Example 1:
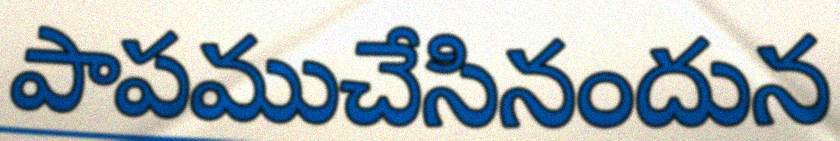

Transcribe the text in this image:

పాపముచేసినందున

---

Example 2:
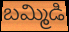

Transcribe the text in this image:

బమ్మిడి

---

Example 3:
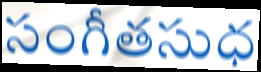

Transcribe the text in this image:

సంగీతసుధ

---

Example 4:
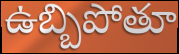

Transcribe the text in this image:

ఉబ్బిపోతూ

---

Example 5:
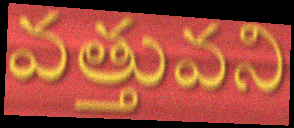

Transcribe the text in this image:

వత్తువని